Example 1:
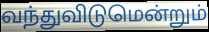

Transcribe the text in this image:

வந்துவிடுமென்றும்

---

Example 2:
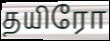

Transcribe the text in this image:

தயிரோ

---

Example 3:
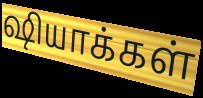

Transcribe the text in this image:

ஷியாக்கள்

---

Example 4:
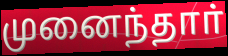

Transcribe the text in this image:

முனைந்தார்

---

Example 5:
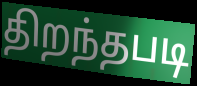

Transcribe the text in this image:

திறந்தபடி